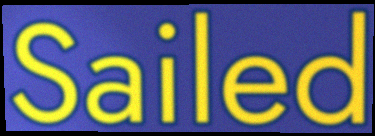
Sailed